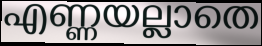
എണ്ണയല്ലാതെ